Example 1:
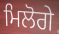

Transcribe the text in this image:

ਮਿਲੋਗੇ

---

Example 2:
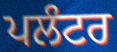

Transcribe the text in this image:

ਪਲੰਟਰ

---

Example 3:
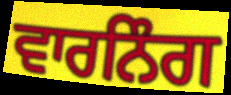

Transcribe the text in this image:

ਵਾਰਨਿੰਗ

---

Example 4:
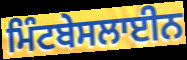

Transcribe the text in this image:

ਮਿੰਟਬੇਸਲਾਈਨ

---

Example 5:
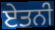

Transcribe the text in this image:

ਏਤਨੀ